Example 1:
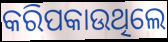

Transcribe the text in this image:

କରିପକାଉଥିଲେ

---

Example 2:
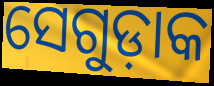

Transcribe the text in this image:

ସେଗୁଡ଼ାକ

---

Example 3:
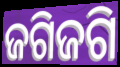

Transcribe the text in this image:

ଜଗିଜଗି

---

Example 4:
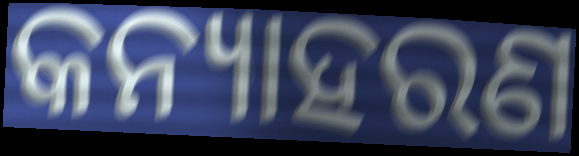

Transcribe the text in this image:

କନ୍ୟାହରଣ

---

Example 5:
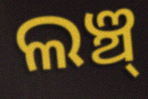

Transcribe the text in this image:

ଲଞ୍ଚ୍